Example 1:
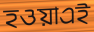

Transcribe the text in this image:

হওয়াএই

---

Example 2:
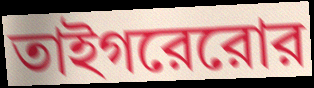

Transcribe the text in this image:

তাইগরেরোর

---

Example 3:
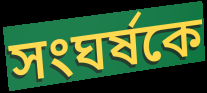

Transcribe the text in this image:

সংঘর্ষকে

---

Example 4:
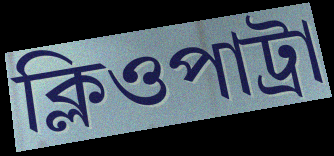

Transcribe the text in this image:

ক্লিওপাট্রা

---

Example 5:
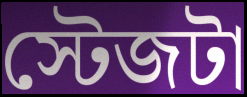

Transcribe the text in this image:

স্টেজটা